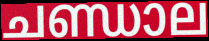
ചണ്ഡാല